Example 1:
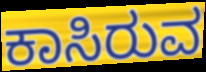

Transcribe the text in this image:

ಕಾಸಿರುವ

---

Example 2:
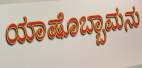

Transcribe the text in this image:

ಯಾಷೊಬ್ಬಾಮನು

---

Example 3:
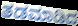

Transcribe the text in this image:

ತಡಮಾಡಿದ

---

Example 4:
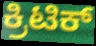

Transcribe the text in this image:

ಕ್ರಿಟಿಕ್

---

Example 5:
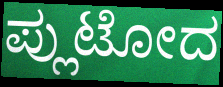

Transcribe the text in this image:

ಪ್ಲುಟೋದ